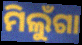
ମିଲୁଁଗା